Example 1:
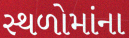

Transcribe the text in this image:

સ્થળોમાંના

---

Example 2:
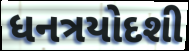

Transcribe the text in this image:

ધનત્રયોદશી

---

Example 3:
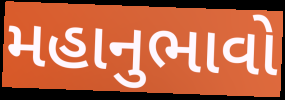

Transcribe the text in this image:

મહાનુભાવો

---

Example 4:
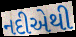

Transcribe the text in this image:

નદીએથી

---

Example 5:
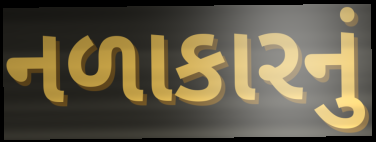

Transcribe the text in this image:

નળાકારનું